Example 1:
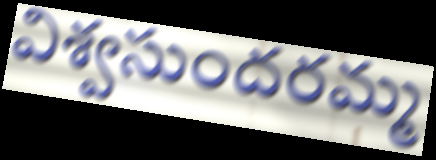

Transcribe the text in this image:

విశ్వసుందరమ్మ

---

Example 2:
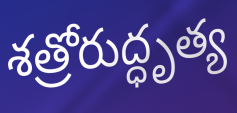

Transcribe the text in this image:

శత్రోరుద్ధృత్య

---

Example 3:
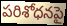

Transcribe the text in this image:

పరిశోధనపై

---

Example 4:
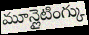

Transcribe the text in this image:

మూన్లైటింగ్కు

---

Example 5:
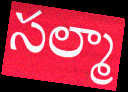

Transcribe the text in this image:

సల్మా